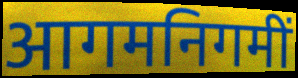
आगमनिगमीं